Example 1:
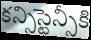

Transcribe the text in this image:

కన్సిస్టెన్సీకి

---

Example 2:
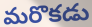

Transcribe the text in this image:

మరొకడు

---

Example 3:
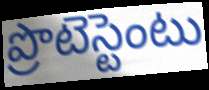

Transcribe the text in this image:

ప్రొటెస్టెంటు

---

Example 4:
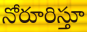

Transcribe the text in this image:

నోరూరిస్తూ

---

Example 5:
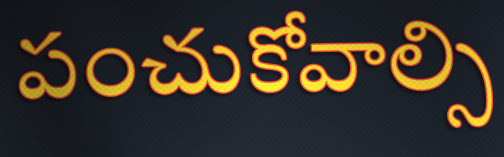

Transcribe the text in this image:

పంచుకోవాల్సి